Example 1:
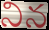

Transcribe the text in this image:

నిన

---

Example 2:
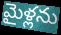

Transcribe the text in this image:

మైళ్లను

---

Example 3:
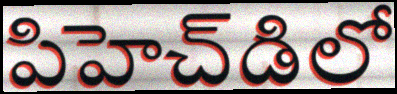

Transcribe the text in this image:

పిహెచ్‌డిలో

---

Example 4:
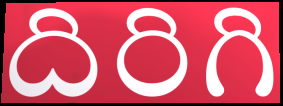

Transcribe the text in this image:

దిరిగి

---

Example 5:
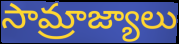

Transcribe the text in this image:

సామ్రాజ్యాలు